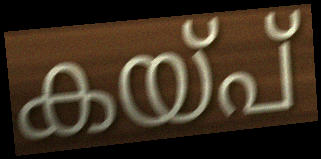
കയ്പ്